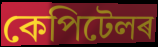
কেপিটেলৰ